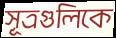
সূত্রগুলিকে